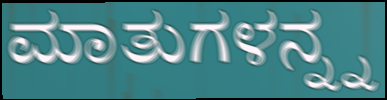
ಮಾತುಗಳನ್ನ್ನ